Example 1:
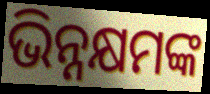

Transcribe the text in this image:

ଭିନ୍ନକ୍ଷମଙ୍କ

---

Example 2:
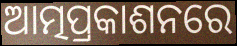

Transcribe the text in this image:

ଆତ୍ମପ୍ରକାଶନରେ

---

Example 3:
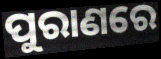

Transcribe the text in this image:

ପୁରାଣରେ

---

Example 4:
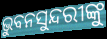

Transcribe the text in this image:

ଭୁବନସୁନ୍ଦରୀଙ୍କୁ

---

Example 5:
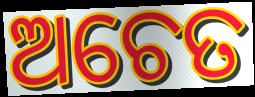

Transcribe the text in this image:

ଅଚେତ